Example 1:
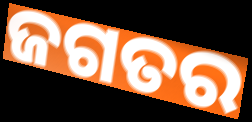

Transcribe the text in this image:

ଜଗତର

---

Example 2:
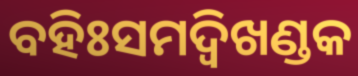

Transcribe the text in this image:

ବହିଃସମଦ୍ୱିଖଣ୍ଡକ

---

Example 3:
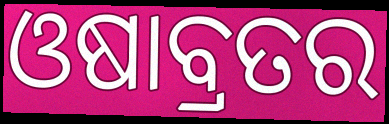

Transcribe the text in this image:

ଓଷାବ୍ରତର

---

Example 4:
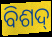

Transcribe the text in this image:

ବିଶଦ୍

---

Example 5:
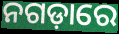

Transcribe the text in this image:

ନଗଡ଼ାରେ